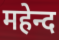
महेन्द